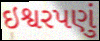
ઇશ્વરપણું